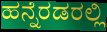
ಹನ್ನೆರಡರಲ್ಲಿ